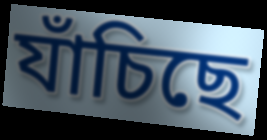
যাঁচিছে